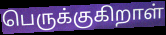
பெருக்குகிறாள்